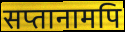
सप्तानामपि